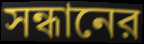
সন্ধানের